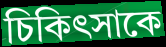
চিকিৎসাকে